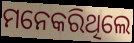
ମନେକରିଥିଲେ